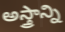
అస్త్రాన్ని